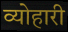
व्योहारी